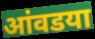
आंवडया